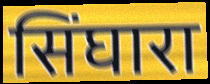
सिंघारा